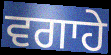
ਵਗਾਹੇ